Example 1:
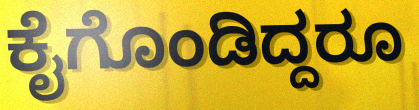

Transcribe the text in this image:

ಕೈಗೊಂಡಿದ್ದರೂ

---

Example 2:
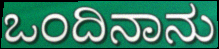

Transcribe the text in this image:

ಒಂದಿನಾನು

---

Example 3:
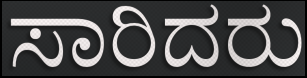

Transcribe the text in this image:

ಸಾರಿದರು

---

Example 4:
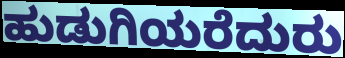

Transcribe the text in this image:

ಹುಡುಗಿಯರೆದುರು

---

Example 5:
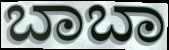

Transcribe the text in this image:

ಬಾಬಾ